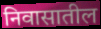
निवासातील